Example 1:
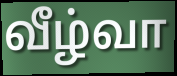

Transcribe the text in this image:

வீழ்வா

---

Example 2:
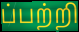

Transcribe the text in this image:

ப்பற்றி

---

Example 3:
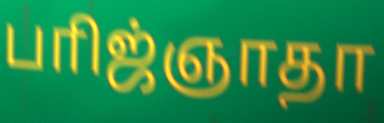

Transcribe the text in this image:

பரிஜ்ஞாதா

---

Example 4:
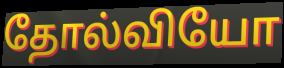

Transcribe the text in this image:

தோல்வியோ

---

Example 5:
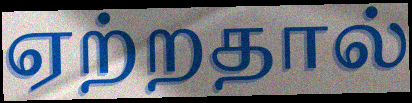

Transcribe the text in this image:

ஏற்றதால்